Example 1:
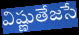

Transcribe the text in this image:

విష్ణుతేజసే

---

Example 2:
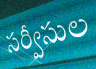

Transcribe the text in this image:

సర్వీసుల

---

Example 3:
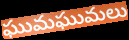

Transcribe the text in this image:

ఘుమఘుమలు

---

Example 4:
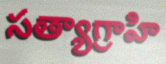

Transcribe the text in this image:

సత్యాగ్రాహి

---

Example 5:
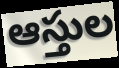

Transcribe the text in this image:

ఆస్తుల